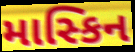
માસ્કિન